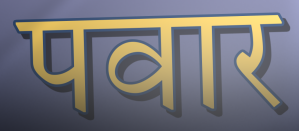
पवार